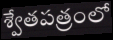
శ్వేతపత్రంలో